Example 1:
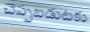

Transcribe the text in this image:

చెప్పబడుటకు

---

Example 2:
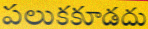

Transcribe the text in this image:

పలుకకూడదు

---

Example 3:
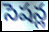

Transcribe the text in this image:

సెషన్ల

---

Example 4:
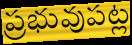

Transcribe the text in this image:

ప్రభువుపట్ల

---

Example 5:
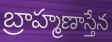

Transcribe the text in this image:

బ్రాహ్మణాస్తేన